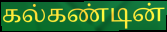
கல்கண்டின்